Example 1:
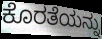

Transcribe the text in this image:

ಕೊರತೆಯನ್ನು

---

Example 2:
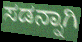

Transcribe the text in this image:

ಸಡನ್ನಾಗಿ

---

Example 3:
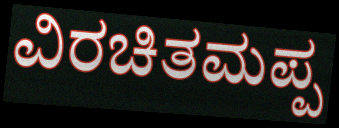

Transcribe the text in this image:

ವಿರಚಿತಮಪ್ಪ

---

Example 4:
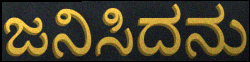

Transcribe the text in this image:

ಜನಿಸಿದನು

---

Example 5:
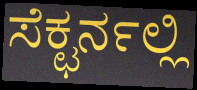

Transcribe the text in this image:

ಸೆಕ್ಟರ್ನಲ್ಲಿ